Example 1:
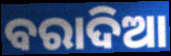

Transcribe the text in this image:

ବରାଦିଆ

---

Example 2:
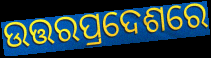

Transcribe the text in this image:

ଉତ୍ତରପ୍ରଦେଶରେ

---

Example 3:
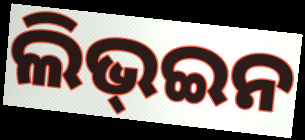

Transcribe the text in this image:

ଲିଭ୍ଇନ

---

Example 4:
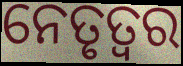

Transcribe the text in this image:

ନେତୃତ୍ଵର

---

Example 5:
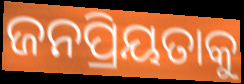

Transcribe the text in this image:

ଜନପ୍ରିୟତାକୁ